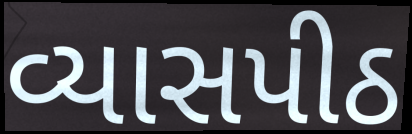
વ્યાસપીઠ